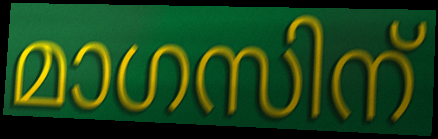
മാഗസിന്